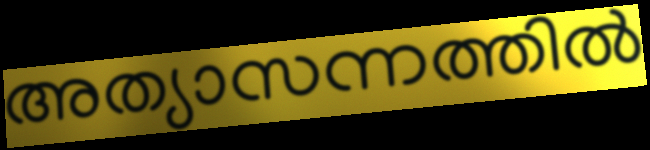
അത്യാസന്നത്തിൽ